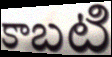
కాబటి